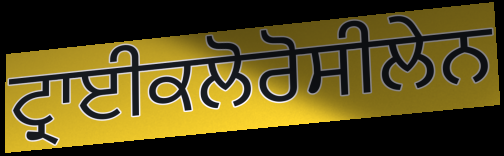
ਟ੍ਰਾਈਕਲੋਰੋਸੀਲੇਨ